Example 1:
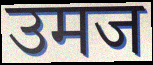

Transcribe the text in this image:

उमज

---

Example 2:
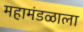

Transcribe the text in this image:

महामंडळाला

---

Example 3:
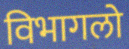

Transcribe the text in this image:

विभागलो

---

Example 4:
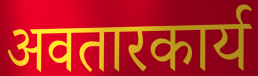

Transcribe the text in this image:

अवतारकार्य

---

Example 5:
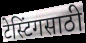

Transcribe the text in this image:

टेस्टिंगसाठी